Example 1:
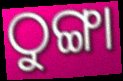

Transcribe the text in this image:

ଠୁଙ୍ଗା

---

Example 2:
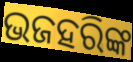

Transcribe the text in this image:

ଭଜହରିଙ୍କ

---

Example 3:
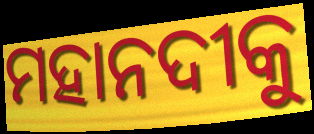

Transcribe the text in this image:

ମହାନଦୀକୁ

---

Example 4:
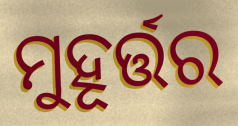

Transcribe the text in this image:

ମୁହୂର୍ତ୍ତର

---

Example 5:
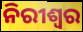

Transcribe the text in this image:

ନିରୀଶ୍ୱର